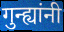
गुन्ह्यांनी